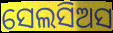
ସେଲସିଅସ